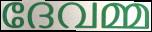
ദേവമ്മ